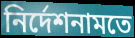
নির্দেশনামতে